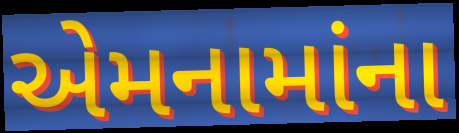
એમનામાંના